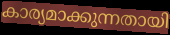
കാര്യമാക്കുന്നതായി